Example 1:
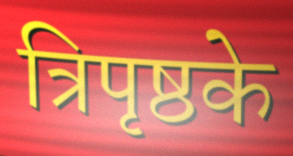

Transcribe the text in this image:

त्रिपृष्ठके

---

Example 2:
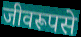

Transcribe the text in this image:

जीवरूपसे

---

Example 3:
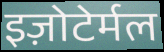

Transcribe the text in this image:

इज़ोटेर्मल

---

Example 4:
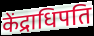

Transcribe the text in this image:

केंद्राधिपति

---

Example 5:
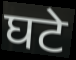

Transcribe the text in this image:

घटे